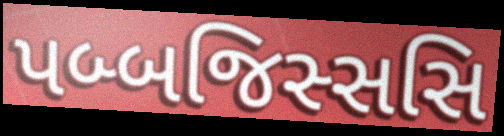
પબ્બજિસ્સસિ